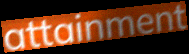
attainment